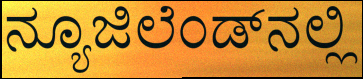
ನ್ಯೂಜಿಲೆಂಡ್‌ನಲ್ಲಿ